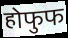
होफुफ